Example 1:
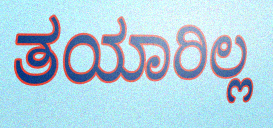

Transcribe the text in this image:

ತಯಾರಿಲ್ಲ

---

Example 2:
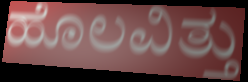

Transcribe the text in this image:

ಹೊಲವಿತ್ತು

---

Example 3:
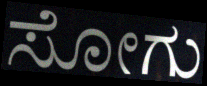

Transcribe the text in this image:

ಸೋಗು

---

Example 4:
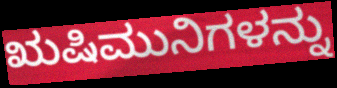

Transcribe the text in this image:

ಋಷಿಮುನಿಗಳನ್ನು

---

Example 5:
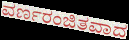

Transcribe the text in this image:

ವರ್ಣರಂಜಿತವಾದ